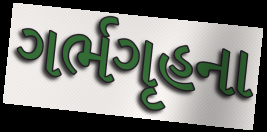
ગર્ભગૃહના